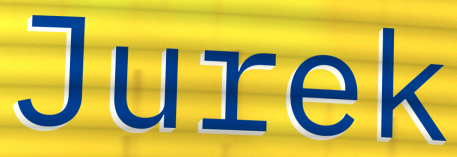
Jurek